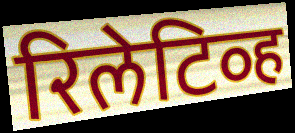
रिलेटिव्ह